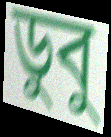
ডুবু